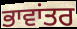
ਭਾਵਾਂਤਰ